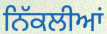
ਨਿੱਕਲੀਆਂ